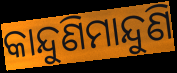
କାନ୍ଦୁଣିମାନ୍ଦୁଣି